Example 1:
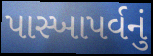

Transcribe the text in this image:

પાસ્ખાપર્વનું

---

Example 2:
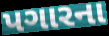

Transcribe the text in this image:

પગારના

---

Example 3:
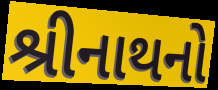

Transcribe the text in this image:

શ્રીનાથનો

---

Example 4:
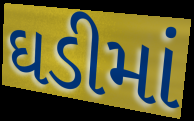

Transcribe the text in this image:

ઘડીમાં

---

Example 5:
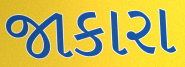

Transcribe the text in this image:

જાકારા